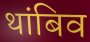
थांबिव